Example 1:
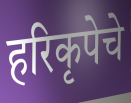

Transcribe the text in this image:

हरिकृपेचे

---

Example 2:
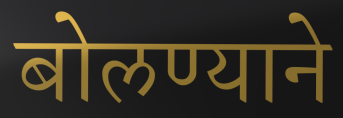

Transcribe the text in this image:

बोलण्याने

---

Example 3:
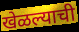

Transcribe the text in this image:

खेळल्याची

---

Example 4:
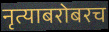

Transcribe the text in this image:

नृत्याबरोबरच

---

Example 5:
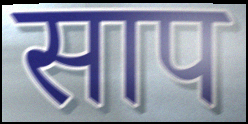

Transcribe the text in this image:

साप